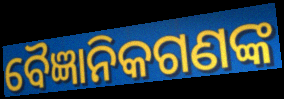
ବୈଜ୍ଞାନିକଗଣଙ୍କ